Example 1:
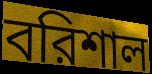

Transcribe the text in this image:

বরিশাল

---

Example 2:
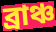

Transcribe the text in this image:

ব্রাঞ্চ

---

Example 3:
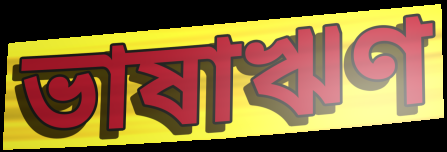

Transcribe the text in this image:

ভাষাঋণ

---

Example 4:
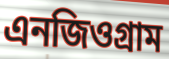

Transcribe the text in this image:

এনজিওগ্রাম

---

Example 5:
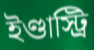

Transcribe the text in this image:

ইণ্ডাস্ট্রি